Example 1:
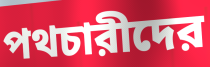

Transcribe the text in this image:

পথচারীদের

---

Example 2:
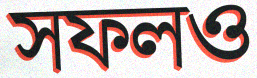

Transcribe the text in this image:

সফলও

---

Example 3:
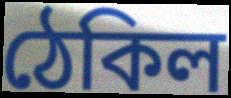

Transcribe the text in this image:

ঠেকিল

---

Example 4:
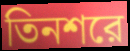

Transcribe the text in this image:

তিনশরে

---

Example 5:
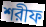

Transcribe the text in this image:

শরীফ